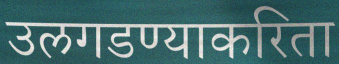
उलगडण्याकरिता